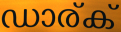
ഡാര്ക്